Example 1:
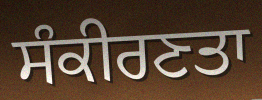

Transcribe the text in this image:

ਸੰਕੀਰਣਤਾ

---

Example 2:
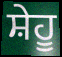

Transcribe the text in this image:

ਸ਼ੇਹੂ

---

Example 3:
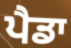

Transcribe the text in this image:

ਪੈਡਾ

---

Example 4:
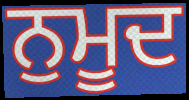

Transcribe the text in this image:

ਨੁਮੂਦ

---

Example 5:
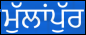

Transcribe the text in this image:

ਮੁੱਲਾਂਪੁੱਰ